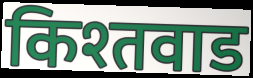
किश्तवाड